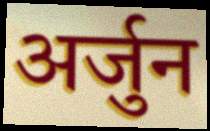
अर्जुन